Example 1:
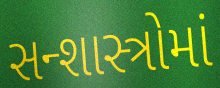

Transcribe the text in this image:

સન્શાસ્ત્રોમાં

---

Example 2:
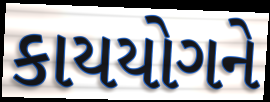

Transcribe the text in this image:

કાયયોગને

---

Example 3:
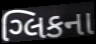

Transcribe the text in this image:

ગ્લિકના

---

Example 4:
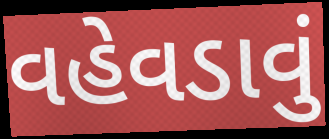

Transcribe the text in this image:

વહેવડાવું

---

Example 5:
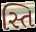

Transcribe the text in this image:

સ્તિ